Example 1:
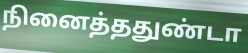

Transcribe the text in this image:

நினைத்ததுண்டா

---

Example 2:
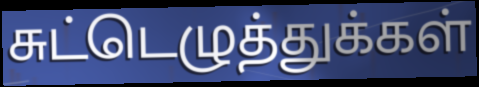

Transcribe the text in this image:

சுட்டெழுத்துக்கள்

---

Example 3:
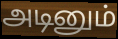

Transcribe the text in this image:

அடினும்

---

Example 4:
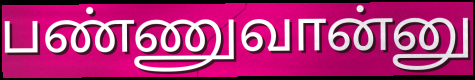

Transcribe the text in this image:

பண்ணுவான்னு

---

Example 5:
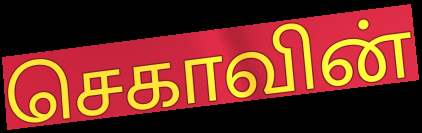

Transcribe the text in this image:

செகாவின்